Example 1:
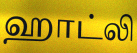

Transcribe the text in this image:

ஹாட்லி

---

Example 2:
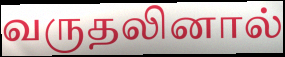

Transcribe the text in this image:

வருதலினால்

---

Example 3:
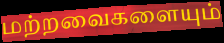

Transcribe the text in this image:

மற்றவைகளையும்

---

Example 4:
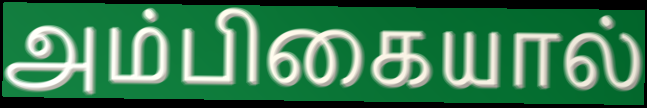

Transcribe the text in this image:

அம்பிகையால்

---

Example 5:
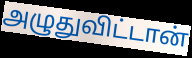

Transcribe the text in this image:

அழுதுவிட்டான்